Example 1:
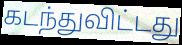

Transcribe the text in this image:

கடந்துவிட்டது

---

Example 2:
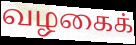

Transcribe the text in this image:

வழகைக்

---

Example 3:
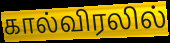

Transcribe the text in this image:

கால்விரலில்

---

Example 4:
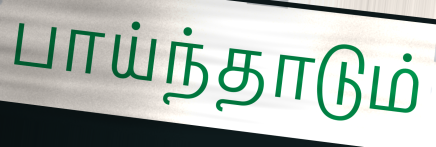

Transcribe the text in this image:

பாய்ந்தாடும்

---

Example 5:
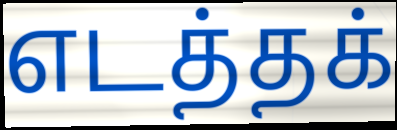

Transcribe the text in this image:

எடத்தக்